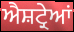
ਐਸ਼ਟ੍ਰੇਆਂ